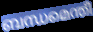
ബന്ധമെന്തീ